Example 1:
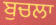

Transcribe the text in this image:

ਬੁਚਲਾ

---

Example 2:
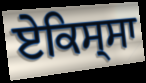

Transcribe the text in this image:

ਏਕਿਸ੍ਸਾ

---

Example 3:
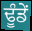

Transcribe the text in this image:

ਢੂੰਡੇਂ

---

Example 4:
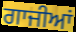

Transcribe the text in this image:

ਗਾਜੀਆਂ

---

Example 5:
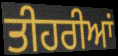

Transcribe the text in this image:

ਤੀਹਰੀਆਂ